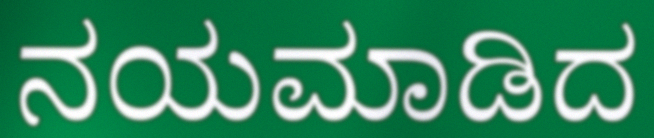
ನಯಮಾಡಿದ